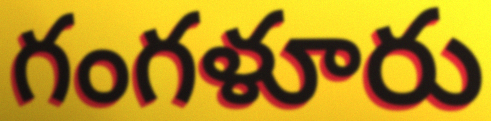
గంగళూరు